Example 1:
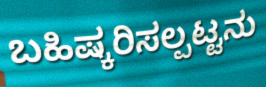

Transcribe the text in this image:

ಬಹಿಷ್ಕರಿಸಲ್ಪಟ್ಟನು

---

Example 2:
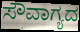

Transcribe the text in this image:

ಸೌವಾಗ್ಯದ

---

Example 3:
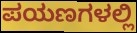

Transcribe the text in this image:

ಪಯಣಗಳಲ್ಲಿ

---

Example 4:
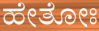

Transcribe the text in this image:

ಹೇತೋಃ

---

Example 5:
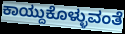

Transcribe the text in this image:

ಕಾಯ್ದುಕೊಳ್ಳುವಂತೆ